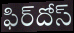
ఫిర్‌దోస్